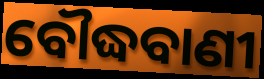
ବୌଦ୍ଧବାଣୀ